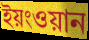
ইয়ংওয়ান